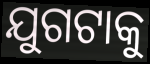
ଯୁଗଟାକୁ